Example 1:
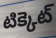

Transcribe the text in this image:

టిక్కెట్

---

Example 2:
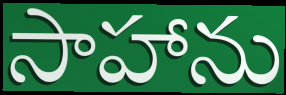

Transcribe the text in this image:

సాహాను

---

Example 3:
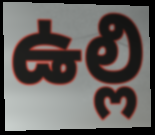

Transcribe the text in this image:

ఉల్లి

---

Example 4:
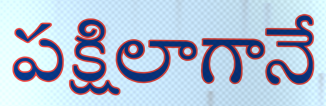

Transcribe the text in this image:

పక్షిలాగానే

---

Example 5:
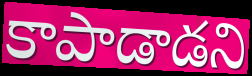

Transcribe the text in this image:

కాపాడాడని